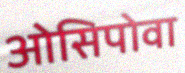
ओसिपोवा